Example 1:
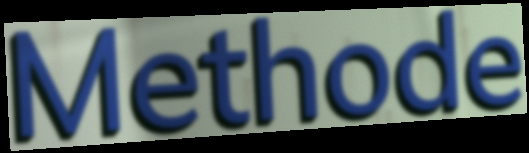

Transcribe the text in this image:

Methode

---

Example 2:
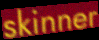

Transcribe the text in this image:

skinner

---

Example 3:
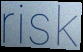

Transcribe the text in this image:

risk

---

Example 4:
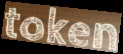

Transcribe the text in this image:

token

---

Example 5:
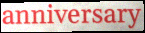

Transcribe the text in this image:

anniversary